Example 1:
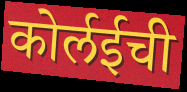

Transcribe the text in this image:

कोर्लईची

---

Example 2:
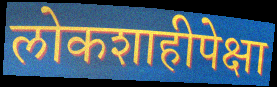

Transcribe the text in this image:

लोकशाहीपेक्षा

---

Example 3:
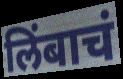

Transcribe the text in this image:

लिंबाचं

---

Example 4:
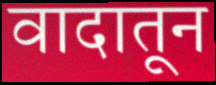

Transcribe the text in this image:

वादातून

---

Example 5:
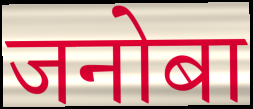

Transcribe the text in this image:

जनोबा